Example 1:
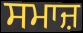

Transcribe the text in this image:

ਸਮਾਜ਼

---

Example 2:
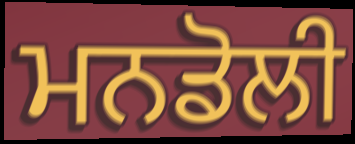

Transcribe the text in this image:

ਮਨਡੋਲੀ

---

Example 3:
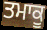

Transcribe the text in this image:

ਤਮਾਕੂ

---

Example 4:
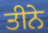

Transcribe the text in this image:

ਤੀਨੇ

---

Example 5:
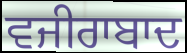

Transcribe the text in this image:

ਵਜੀਰਾਬਾਦ